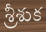
శ్రీశుక